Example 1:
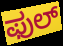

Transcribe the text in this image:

ಫುಲ್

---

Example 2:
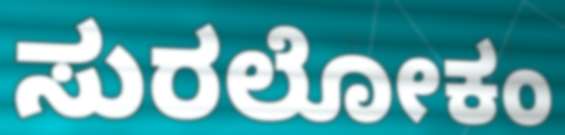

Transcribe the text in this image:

ಸುರಲೋಕಂ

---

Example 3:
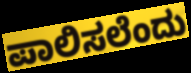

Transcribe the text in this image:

ಪಾಲಿಸಲೆಂದು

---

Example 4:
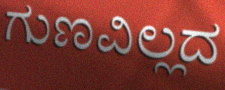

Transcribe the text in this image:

ಗುಣವಿಲ್ಲದ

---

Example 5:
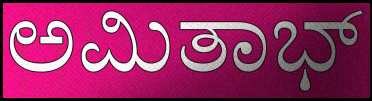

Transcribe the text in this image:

ಅಮಿತಾಭ್